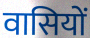
वासियों